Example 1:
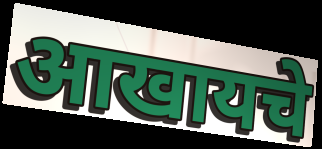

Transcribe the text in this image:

आखायचे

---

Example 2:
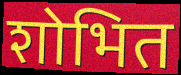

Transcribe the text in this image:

शोभित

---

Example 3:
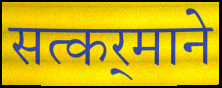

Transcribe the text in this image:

सत्कर्माने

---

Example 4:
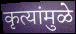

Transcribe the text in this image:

कृत्यांमुळे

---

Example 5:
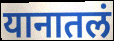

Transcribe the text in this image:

यानातलं